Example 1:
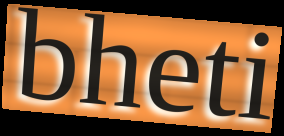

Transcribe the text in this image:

bheti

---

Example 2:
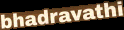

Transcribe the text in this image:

bhadravathi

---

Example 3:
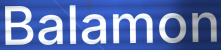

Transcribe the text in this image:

Balamon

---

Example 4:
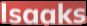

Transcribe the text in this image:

Isaaks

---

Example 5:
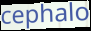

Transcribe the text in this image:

cephalo